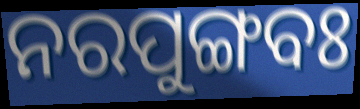
ନରପୁଙ୍ଗବଃ